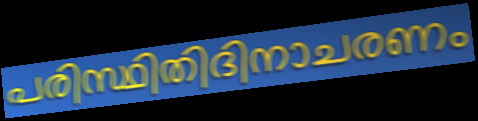
പരിസ്ഥിതിദിനാചരണം